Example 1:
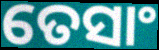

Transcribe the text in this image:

ତେସାଂ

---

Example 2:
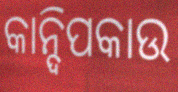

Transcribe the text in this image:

କାନ୍ଦିପକାଉ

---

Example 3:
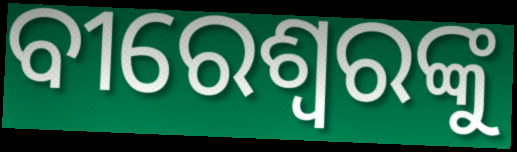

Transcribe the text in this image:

ବୀରେଶ୍ୱରଙ୍କୁ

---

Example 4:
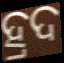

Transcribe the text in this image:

ହ୍ରଦ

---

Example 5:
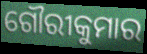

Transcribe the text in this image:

ଗୌରୀକୁମାର